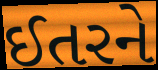
ઈતરને